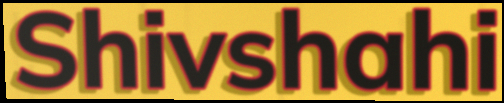
Shivshahi